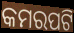
କମରପଟି